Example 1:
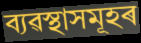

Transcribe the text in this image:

ব্যৱস্থাসমূহৰ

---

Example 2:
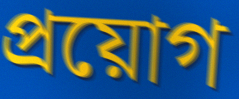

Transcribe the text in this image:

প্ৰয়োগ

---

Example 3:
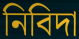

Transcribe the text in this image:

নিবিদা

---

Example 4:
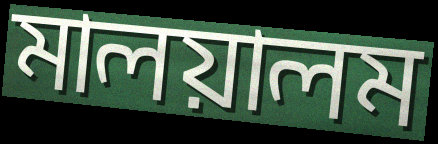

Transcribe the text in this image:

মালয়ালম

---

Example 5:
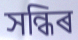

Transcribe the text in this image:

সন্ধিৰ